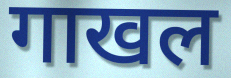
गाखल